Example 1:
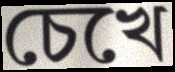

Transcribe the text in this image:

চেখে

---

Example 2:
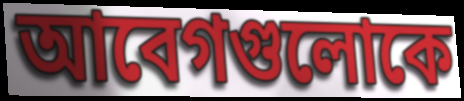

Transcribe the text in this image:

আবেগগুলোকে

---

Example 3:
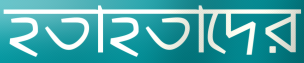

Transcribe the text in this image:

হতাহতাদের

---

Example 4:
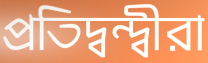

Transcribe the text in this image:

প্রতিদ্বন্দ্বীরা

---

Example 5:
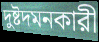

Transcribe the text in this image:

দুষ্টদমনকারী